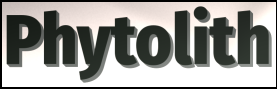
Phytolith